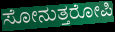
ಸೋನುತ್ತರೋಪಿ